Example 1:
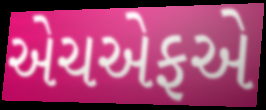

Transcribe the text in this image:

એચએફએ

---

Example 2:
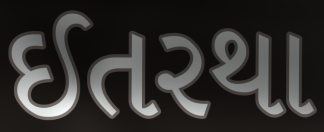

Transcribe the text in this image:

ઈતરથા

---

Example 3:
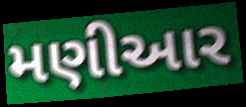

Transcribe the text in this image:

મણીઆર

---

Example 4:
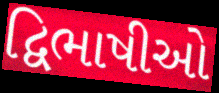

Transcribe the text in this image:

દ્વિભાષીઓ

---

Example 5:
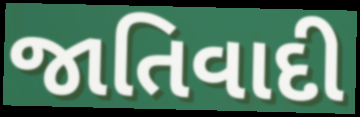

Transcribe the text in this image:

જાતિવાદી